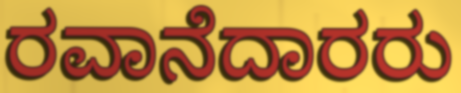
ರವಾನೆದಾರರು